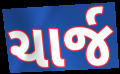
ચાર્જ